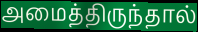
அமைத்திருந்தால்